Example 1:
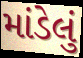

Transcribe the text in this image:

માંડેલું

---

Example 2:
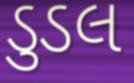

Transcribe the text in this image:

ડુડલ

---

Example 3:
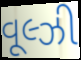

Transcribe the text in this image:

વૂલ્ઝી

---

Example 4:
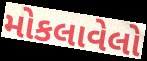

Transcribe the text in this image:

મોકલાવેલો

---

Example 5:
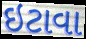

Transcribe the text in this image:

ઇટાવા